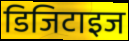
डिजिटाइज